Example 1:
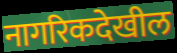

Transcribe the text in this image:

नागरिकदेखील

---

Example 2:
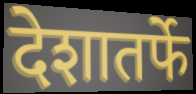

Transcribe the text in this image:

देशातर्फे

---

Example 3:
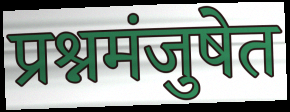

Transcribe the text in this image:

प्रश्नमंजुषेत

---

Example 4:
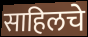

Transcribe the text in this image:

साहिलचे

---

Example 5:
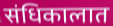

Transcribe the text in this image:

संधिकालात